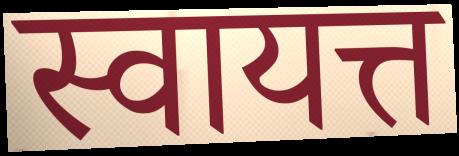
स्वायत्त